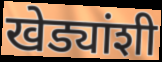
खेड्यांशी